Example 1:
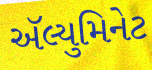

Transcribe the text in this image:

ઍલ્યુમિનેટ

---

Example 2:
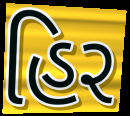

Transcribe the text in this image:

હિર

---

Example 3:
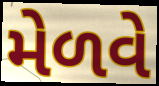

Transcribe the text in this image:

મેળવે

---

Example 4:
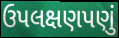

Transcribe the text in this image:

ઉપલક્ષણપણું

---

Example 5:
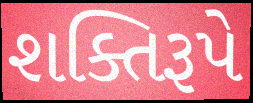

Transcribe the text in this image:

શક્તિરૂપે